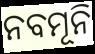
ନବମୂନି